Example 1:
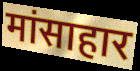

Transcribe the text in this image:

मांसाहार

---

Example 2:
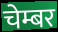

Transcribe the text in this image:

चेम्बर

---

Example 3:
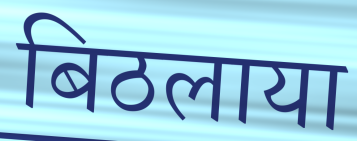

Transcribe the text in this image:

बिठलाया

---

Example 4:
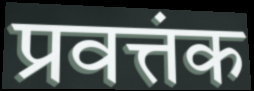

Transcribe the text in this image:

प्रवत्तंक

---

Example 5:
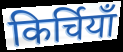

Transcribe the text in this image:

किर्चियाँ